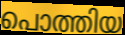
പൊത്തിയ